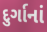
દુર્ગાનાં